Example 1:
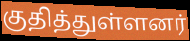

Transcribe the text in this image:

குதித்துள்ளனர்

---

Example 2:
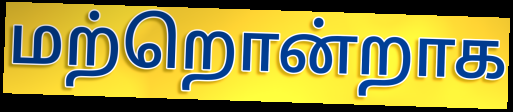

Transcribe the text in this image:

மற்றொன்றாக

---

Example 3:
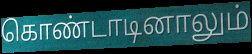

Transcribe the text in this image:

கொண்டாடினாலும்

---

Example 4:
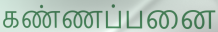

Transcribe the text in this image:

கண்ணப்பனை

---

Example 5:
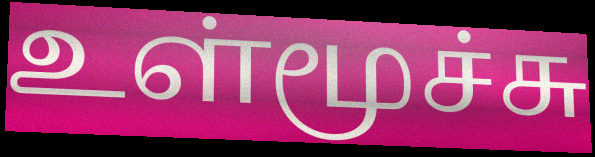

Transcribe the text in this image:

உள்மூச்சு